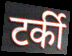
टर्की